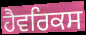
ਹੈਵਰਿਕਸ